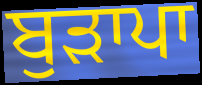
ਬੁੜਾਪਾ